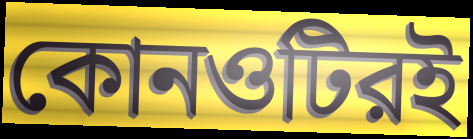
কোনওটিরই